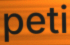
peti